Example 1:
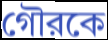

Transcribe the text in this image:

গৌরকে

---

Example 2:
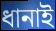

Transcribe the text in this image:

ধানাই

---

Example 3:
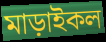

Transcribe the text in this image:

মাড়াইকল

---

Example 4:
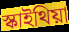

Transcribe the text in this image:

স্কাইথিয়া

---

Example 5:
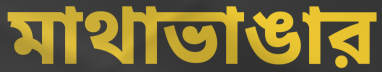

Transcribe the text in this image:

মাথাভাঙার